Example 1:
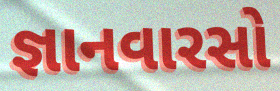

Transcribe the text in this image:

જ્ઞાનવારસો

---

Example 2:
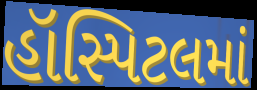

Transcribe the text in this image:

હૉસ્પિટલમાં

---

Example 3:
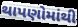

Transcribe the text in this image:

થાપણોમાંથી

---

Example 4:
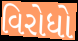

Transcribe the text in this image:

વિરોધો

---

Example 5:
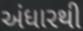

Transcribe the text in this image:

અંધારથી